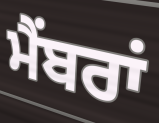
ਮੈਂਬਰਾਂ